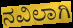
ನವಿಲಾಗಿ